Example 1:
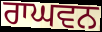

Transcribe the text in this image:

ਰਾਘਵਨ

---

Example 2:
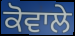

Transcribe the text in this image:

ਕੋਵਾਲੇ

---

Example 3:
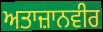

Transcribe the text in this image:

ਅਤਾਜ਼ਾਨਵੀਰ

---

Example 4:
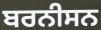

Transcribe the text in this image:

ਬਰਨੀਸਨ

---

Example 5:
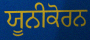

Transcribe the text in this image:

ਯੂਨੀਕੋਰਨ